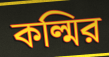
কল্মির